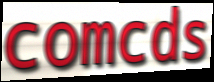
comcds